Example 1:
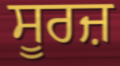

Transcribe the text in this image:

ਸੂਰਜ਼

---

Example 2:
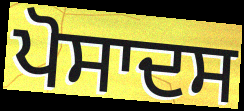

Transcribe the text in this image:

ਪੋਸਾਦਸ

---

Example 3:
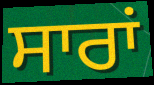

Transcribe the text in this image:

ਸਾਰਾਂ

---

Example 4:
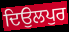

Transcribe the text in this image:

ਦਿਉਲਪੁਰ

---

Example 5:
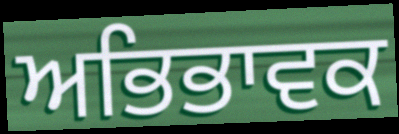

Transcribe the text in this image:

ਅਭਿਭਾਵਕ